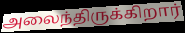
அலைந்திருக்கிறார்